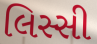
લિસ્સી